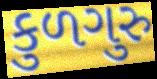
કુળગુરુ